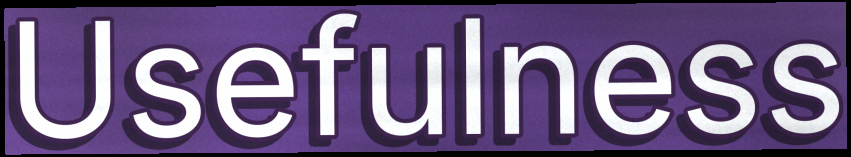
Usefulness